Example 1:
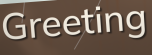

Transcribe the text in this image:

Greeting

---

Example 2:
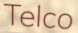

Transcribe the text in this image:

Telco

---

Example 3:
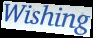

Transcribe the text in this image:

Wishing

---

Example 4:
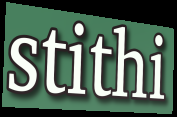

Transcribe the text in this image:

stithi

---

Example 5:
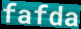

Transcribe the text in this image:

fafda